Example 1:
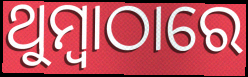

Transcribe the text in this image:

ଥୁମ୍ବାଠାରେ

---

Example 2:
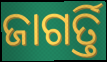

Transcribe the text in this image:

ଜାଗର୍ତ୍ତି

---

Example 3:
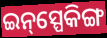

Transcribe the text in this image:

ଇନ୍‌ସ୍ପେକିଙ୍ଗ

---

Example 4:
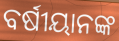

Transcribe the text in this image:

ବର୍ଷୀୟାନଙ୍କ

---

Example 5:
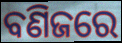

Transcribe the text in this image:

ବଣିଜରେ